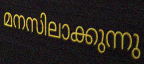
മനസിലാക്കുന്നു